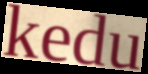
kedu